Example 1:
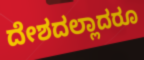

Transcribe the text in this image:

ದೇಶದಲ್ಲಾದರೂ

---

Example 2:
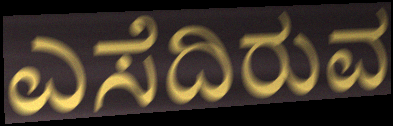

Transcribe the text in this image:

ಎಸೆದಿರುವ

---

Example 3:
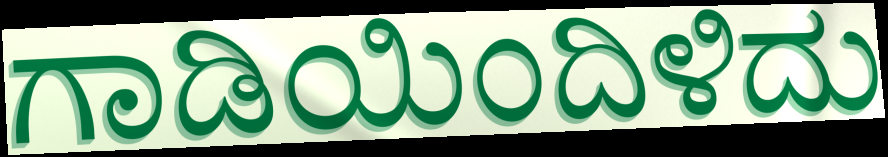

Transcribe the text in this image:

ಗಾಡಿಯಿಂದಿಳಿದು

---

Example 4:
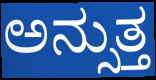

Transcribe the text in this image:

ಅನ್ಸುತ್ತ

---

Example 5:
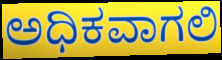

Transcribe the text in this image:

ಅಧಿಕವಾಗಲಿ